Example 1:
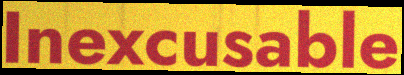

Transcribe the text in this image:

Inexcusable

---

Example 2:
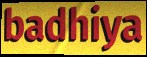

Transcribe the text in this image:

badhiya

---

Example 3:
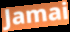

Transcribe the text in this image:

Jamai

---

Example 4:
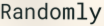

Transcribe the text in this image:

Randomly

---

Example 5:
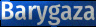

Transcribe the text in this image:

Barygaza